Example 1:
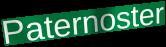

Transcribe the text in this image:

Paternoster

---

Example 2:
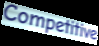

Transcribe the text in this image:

Competitive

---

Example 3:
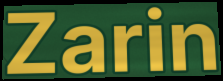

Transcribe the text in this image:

Zarin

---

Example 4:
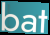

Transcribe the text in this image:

bat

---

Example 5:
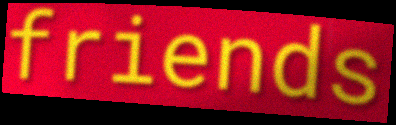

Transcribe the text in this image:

friends